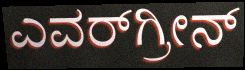
ಎವರ್‌ಗ್ರೀನ್